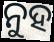
ନୁହ